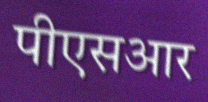
पीएसआर